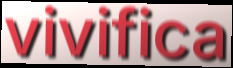
vivifica